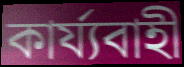
কাৰ্য্যবাহী